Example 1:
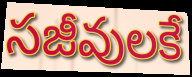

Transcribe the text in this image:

సజీవులకే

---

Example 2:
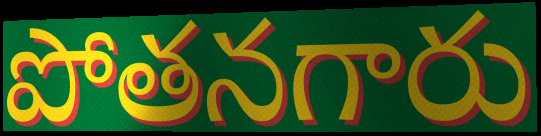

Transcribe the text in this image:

పోతనగారు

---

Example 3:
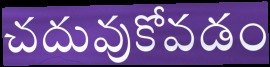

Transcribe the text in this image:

చదువుకోవడం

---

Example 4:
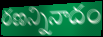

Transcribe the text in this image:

రణన్నినాదం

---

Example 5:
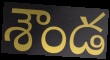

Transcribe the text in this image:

శౌండ